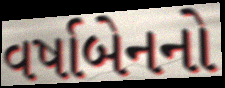
વર્ષાબેનનો